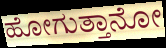
ಹೋಗುತ್ತಾನೋ